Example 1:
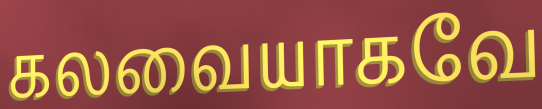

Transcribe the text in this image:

கலவையாகவே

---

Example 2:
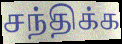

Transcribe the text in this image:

சந்திக்க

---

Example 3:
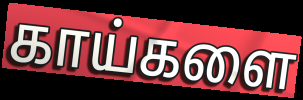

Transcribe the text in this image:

காய்களை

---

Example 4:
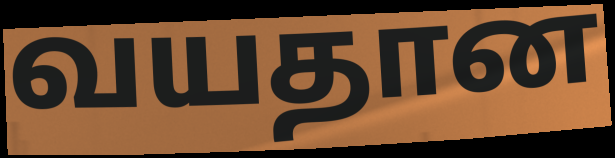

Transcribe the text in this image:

வயதான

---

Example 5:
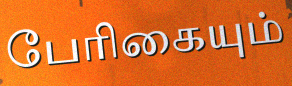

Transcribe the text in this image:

பேரிகையும்